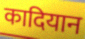
कादियान